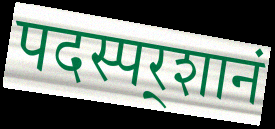
पदस्पर्शानं